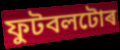
ফুটবলটোৰ